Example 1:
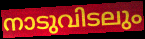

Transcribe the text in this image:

നാടുവിടലും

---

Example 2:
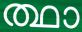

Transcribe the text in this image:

ത്ഥാ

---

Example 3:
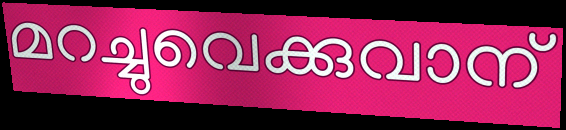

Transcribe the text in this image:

മറച്ചുവെക്കുവാന്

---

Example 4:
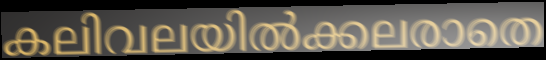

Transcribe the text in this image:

കലിവലയിൽക്കലരാതെ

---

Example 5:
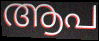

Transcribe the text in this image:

ആപ